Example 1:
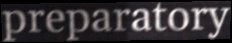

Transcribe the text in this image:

preparatory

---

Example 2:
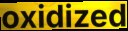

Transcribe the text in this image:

oxidized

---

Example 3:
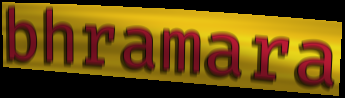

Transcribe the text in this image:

bhramara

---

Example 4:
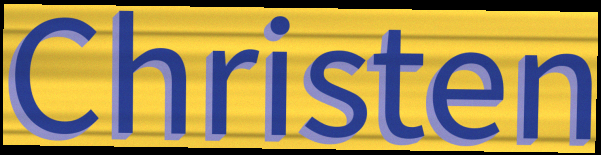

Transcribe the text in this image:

Christen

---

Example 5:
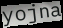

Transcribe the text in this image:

yojna